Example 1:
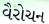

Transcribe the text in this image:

વૈરોચન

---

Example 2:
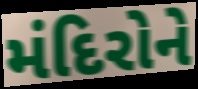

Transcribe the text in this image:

મંદિરોને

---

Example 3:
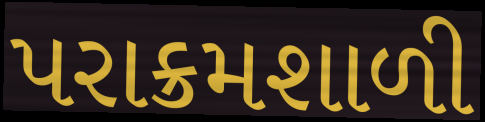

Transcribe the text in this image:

પરાક્રમશાળી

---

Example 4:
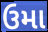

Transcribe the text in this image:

ઉમા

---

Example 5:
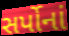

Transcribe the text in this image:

સર્પોનાં